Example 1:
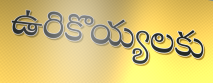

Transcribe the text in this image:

ఉరికొయ్యలకు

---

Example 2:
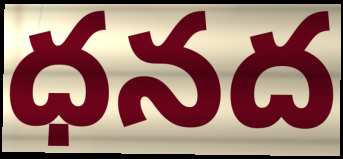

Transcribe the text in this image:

ధనద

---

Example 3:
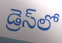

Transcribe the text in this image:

డ్రెస్‌లో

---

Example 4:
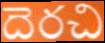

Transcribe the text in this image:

దెరచి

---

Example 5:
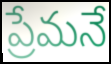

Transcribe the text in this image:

ప్రేమనే